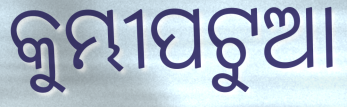
କୁମ୍ଭୀପଟୁଆ